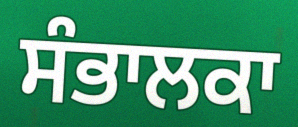
ਸੰਭਾਲਕਾ